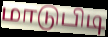
மாடுபிடி